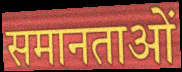
समानताओं